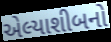
એલ્યાશીબનો